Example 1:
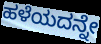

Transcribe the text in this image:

ಹಳೆಯದನ್ನೇ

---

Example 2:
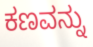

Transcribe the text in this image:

ಕಣವನ್ನು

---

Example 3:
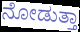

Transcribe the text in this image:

ನೋಡುತ್ತಾ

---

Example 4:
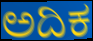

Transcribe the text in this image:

ಅದಿಕ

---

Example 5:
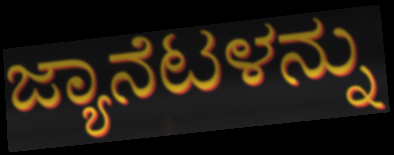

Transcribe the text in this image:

ಜ್ಯಾನೆಟಳನ್ನು